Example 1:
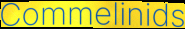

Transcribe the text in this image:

Commelinids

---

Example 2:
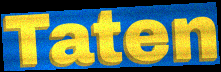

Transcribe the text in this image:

Taten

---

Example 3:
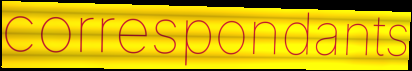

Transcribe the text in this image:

correspondants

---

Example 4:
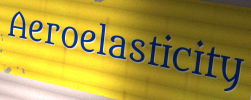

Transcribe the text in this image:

Aeroelasticity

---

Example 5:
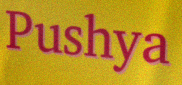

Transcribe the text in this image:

Pushya